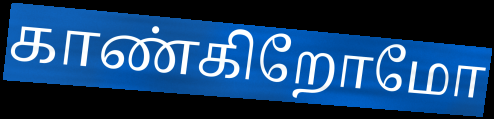
காண்கிறோமோ